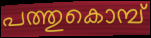
പത്തുകൊമ്പ്